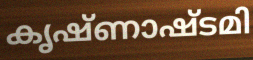
കൃഷ്ണാഷ്ടമി